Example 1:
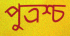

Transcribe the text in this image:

পুত্রশ্চ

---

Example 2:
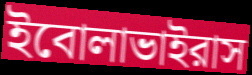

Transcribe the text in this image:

ইবোলাভাইরাস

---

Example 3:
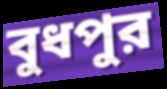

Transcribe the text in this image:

বুধপুর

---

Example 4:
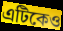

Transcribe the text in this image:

এটিকেও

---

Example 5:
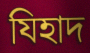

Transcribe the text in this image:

যিহাদ